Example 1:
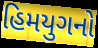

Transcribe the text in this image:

હિમયુગનો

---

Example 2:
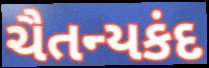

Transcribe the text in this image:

ચૈતન્યકંદ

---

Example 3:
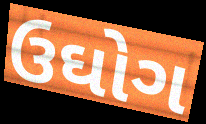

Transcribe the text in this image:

ઉઘોગ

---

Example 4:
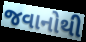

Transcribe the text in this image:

જવાનોથી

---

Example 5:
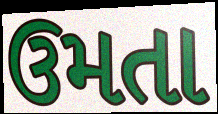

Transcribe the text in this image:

ઉમતા